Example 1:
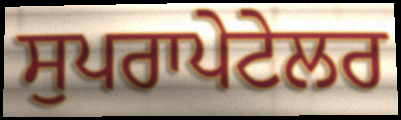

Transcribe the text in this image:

ਸੁਪਰਾਪੇਟੇਲਰ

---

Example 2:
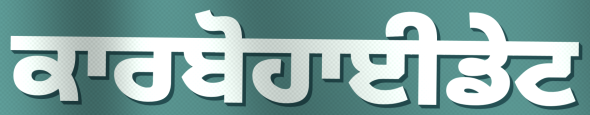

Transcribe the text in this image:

ਕਾਰਬੋਹਾਈਡੇਟ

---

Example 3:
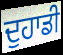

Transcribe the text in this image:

ਦੁਹਾਡੀ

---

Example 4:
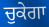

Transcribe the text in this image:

ਚੁਕੇਗਾ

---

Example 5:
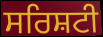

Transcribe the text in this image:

ਸਰਿਸ਼ਟੀ